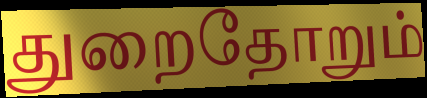
துறைதோறும்